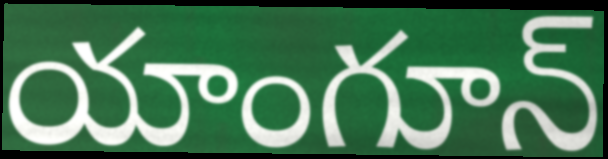
యాంగూన్